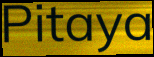
Pitaya